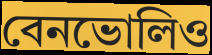
বেনভোলিও